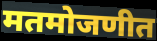
मतमोजणीत